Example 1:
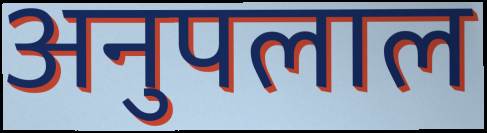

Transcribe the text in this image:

अनुपलाल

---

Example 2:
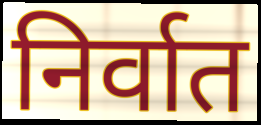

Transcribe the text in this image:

निर्वात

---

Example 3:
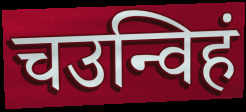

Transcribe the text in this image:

चउन्विहं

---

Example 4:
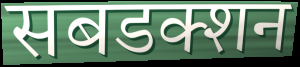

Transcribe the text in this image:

सबडक्शन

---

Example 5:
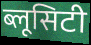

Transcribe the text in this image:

ब्लूसिटी